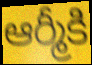
ఆర్మీకి